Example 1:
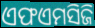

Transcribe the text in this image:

ଏଫଏମସିଜି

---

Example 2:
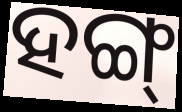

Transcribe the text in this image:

ହଙ୍ଗ୍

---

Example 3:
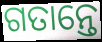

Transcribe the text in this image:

ଗତାନ୍ତେ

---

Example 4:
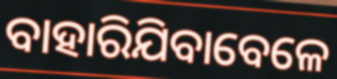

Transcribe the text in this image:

ବାହାରିଯିବାବେଳେ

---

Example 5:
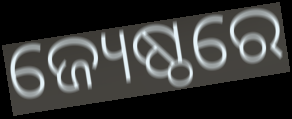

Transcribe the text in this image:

ଜ୍ୟେଷ୍ଠରେ